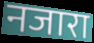
नजारा